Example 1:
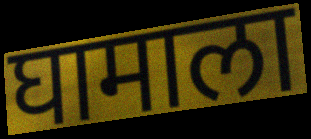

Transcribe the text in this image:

घामाला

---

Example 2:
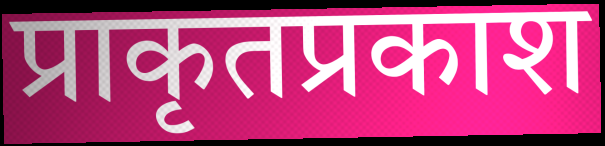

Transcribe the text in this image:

प्राकृतप्रकाश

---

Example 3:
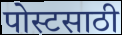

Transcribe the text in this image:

पोस्टसाठी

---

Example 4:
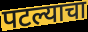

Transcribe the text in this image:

पटल्याचा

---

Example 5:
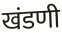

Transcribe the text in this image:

खंडणी